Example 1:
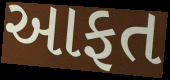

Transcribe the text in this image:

આફત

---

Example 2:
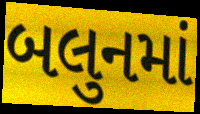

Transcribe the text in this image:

બલુનમાં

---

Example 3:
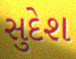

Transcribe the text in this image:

સુદેશ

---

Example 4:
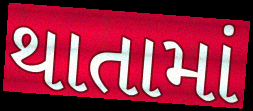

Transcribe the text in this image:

થાતામાં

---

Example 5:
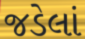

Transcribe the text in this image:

જડેલાં